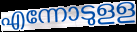
എന്നോടുളള